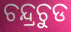
ଚନ୍ଦ୍ରଚୁଡ